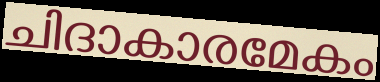
ചിദാകാരമേകം